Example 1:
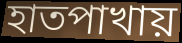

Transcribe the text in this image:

হাতপাখায়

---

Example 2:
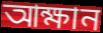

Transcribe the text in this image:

আক্ষান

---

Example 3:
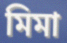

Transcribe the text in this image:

মিমা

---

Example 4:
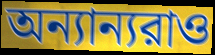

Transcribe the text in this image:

অন্যান্যরাও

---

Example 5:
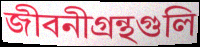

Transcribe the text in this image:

জীবনীগ্রন্থগুলি